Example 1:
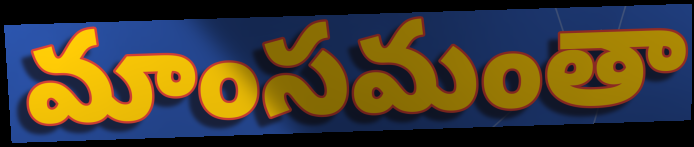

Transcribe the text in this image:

మాంసమంతా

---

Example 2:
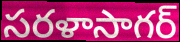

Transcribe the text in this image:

సరళాసాగర్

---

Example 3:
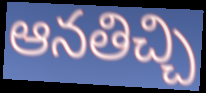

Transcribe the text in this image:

ఆనతిచ్చి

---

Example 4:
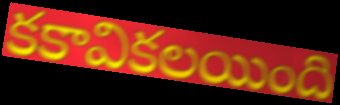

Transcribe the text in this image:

కకావికలయింది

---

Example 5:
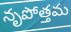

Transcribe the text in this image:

నృపోత్తమ